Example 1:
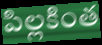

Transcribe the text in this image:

పిల్లకింత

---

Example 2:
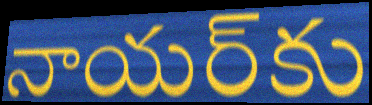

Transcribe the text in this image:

నాయర్‌కు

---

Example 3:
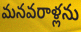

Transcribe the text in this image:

మనవరాళ్లను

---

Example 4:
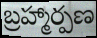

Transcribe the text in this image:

బ్రహ్మార్పణ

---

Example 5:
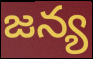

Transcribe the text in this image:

జన్య